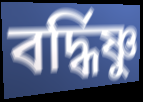
বর্দ্ধিষ্ণু